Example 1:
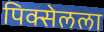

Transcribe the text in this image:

पिक्सेलला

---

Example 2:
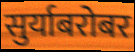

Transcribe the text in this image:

सुर्याबरोबर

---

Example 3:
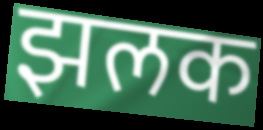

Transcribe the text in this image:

झलक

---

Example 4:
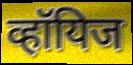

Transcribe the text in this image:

व्हॉयिज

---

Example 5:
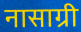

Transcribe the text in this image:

नासाग्री